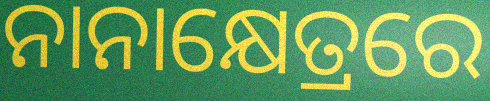
ନାନାକ୍ଷେତ୍ରରେ